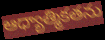
ఆధ్యాత్మికతను